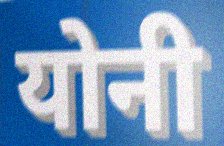
योनी